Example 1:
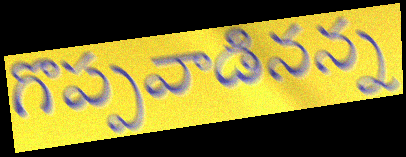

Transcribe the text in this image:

గొప్పవాడినన్న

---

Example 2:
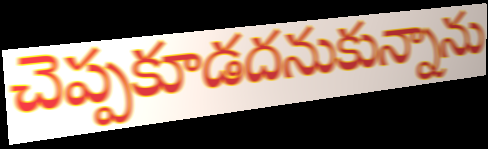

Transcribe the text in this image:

చెప్పకూడదనుకున్నాను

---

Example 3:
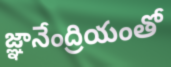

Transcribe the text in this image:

జ్ఞానేంద్రియంతో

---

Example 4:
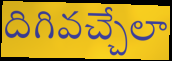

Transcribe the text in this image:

దిగివచ్చేలా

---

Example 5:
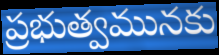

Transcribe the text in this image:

ప్రభుత్వమునకు